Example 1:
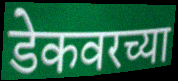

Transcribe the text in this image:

डेकवरच्या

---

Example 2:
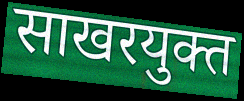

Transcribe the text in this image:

साखरयुक्त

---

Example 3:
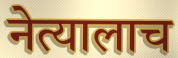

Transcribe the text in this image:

नेत्यालाच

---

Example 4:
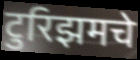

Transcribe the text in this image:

टुरिझमचे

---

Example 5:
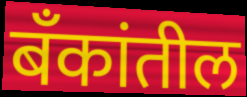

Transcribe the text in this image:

बॅंकांतील